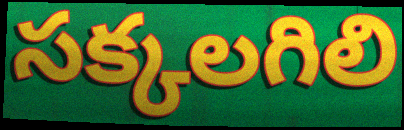
సక్కలగిలి